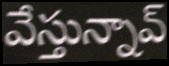
వేస్తున్నావ్